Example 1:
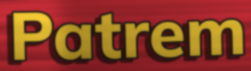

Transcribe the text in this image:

Patrem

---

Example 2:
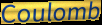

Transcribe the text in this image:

Coulomb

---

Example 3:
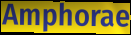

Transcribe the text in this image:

Amphorae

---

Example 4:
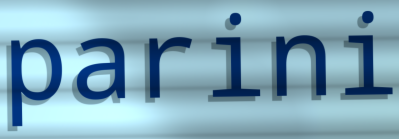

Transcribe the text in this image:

parini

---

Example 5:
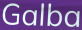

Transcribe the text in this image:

Galba